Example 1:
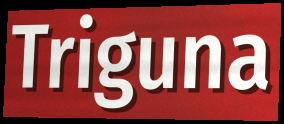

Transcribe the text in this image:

Triguna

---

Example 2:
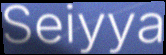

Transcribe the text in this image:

Seiyya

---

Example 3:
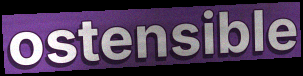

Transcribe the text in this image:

ostensible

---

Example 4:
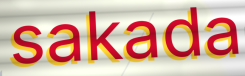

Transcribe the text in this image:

sakada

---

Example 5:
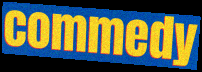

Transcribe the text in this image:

commedy